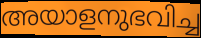
അയാളനുഭവിച്ച